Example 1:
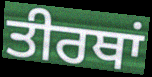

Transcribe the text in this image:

ਤੀਰਥਾਂ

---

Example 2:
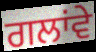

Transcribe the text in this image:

ਗਲਾਂਵੇ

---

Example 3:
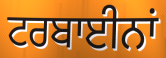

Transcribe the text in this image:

ਟਰਬਾਈਨਾਂ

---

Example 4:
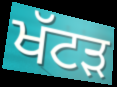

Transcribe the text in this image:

ਖੱਟੜ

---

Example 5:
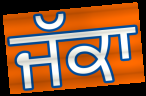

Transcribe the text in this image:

ਜੱਕਾ